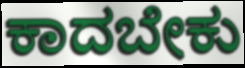
ಕಾದಬೇಕು